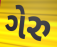
ગેરુ